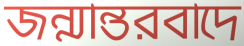
জন্মান্তরবাদে